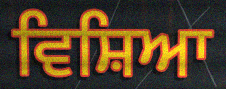
ਵਿਸ਼ਿਆ